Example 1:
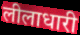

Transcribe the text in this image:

लीलाधारी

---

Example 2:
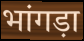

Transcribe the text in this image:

भांगड़ा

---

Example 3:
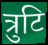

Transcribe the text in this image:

त्रुटि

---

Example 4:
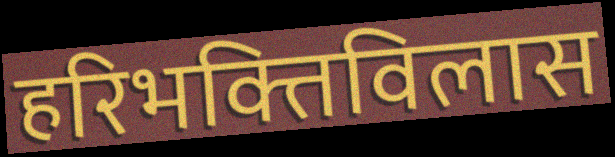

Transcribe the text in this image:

हरिभक्तिविलास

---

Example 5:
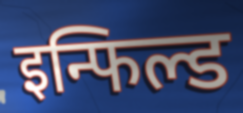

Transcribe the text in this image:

इन्फिल्ड